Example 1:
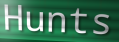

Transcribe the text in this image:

Hunts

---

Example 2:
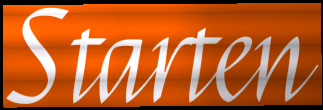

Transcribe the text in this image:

Starten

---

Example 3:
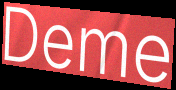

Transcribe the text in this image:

Deme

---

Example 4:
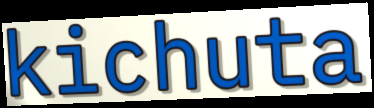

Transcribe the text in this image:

kichuta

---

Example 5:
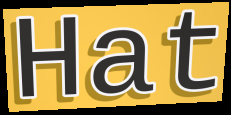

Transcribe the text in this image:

Hat